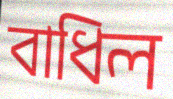
বাধিল